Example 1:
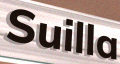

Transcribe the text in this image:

Suilla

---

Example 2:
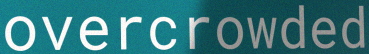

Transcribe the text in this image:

overcrowded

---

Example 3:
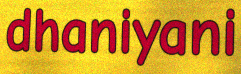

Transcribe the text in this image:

dhaniyani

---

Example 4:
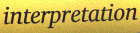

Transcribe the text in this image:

interpretation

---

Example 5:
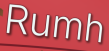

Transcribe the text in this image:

Rumh